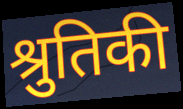
श्रुतिकी